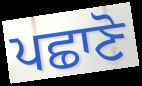
ਪਛਾਣੋ